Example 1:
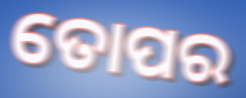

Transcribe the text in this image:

ତୋପର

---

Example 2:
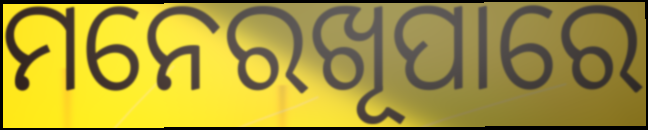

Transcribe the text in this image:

ମନେରଖୂପାରେ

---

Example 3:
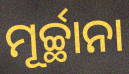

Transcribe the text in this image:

ମୂର୍ଚ୍ଛାନା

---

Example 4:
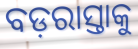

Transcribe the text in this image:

ବଡ଼ରାସ୍ତାକୁ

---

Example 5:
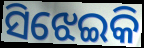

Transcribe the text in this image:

ସିଝେଇକି